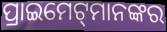
ପ୍ରାଇମେଟ୍‌ମାନଙ୍କର